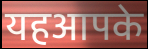
यहआपके